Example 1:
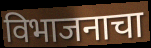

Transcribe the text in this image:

विभाजनाचा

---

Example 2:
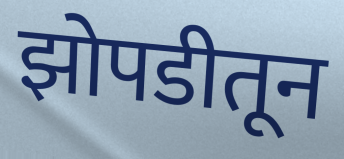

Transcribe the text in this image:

झोपडीतून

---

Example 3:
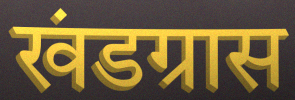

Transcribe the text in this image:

खंडग्रास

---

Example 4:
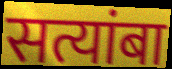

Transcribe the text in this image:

सत्यांबा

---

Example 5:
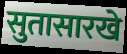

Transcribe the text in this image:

सुतासारखे